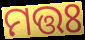
ମତ୍ତଃ